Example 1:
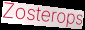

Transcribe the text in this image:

Zosterops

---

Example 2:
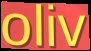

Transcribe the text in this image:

oliv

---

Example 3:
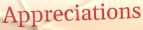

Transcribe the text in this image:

Appreciations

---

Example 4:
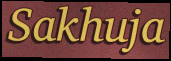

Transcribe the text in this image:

Sakhuja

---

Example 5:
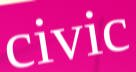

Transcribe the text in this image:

civic